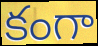
కంగా